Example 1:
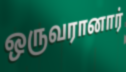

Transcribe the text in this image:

ஒருவரானார்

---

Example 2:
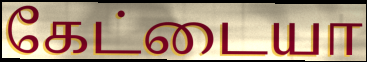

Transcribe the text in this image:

கேட்டையா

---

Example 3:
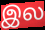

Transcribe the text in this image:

இல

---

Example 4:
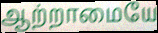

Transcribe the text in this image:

ஆற்றாமையே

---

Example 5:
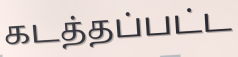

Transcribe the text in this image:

கடத்தப்பட்ட